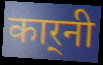
कार्नी